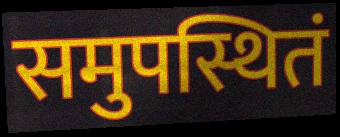
समुपस्थितं